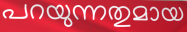
പറയുന്നതുമായ